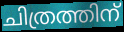
ചിത്രത്തിന്